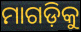
ମାଗଡ଼ିକୁ